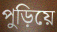
পুড়িয়ে